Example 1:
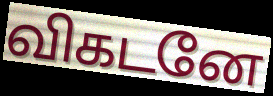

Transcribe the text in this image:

விகடனே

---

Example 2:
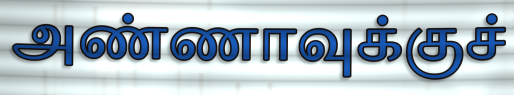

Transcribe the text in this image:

அண்ணாவுக்குச்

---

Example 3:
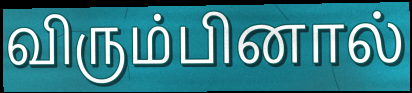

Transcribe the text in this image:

விரும்பினால்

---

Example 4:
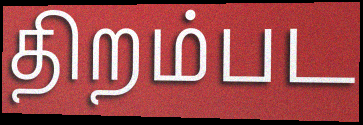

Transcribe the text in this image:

திறம்பட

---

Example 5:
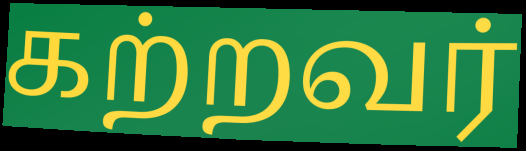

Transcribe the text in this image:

கற்றவர்